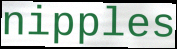
nipples